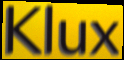
Klux